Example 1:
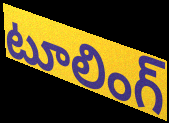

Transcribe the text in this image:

టూలింగ్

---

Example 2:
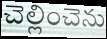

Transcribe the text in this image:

చెల్లించెను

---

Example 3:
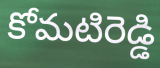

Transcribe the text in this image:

కోమటిరెడ్డి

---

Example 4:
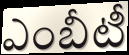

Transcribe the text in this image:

ఎంబీటీ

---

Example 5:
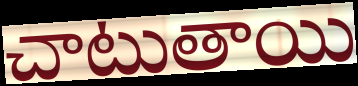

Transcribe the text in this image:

చాటుతాయి